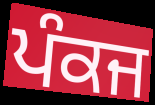
ਪੰਕਜ